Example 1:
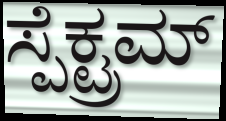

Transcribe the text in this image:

ಸ್ಪೆಕ್ಟ್ರಮ್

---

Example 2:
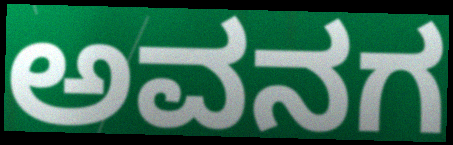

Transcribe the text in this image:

ಅವನಗ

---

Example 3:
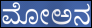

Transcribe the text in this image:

ಮೋಅನ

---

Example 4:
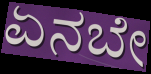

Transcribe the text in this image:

ಏನಬೇ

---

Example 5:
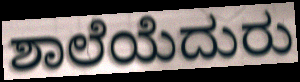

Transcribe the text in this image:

ಶಾಲೆಯೆದುರು